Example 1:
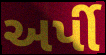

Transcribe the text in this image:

અર્પી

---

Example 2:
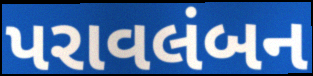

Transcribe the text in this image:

પરાવલંબન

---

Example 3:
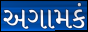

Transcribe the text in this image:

અગામકં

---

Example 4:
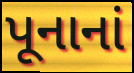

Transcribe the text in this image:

પૂનાનાં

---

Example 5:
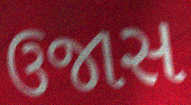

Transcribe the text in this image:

ઉજાસ